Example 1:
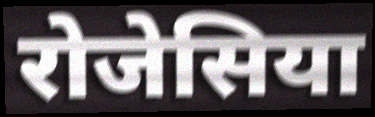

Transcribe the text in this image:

रोजेसिया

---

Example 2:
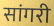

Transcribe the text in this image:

सांगरी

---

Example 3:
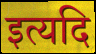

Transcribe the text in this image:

इत्यदि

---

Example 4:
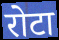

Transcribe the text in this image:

रोटा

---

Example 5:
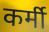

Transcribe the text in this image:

कर्मी